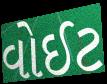
વોઈટ